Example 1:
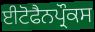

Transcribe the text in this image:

ਈਟੋਫੈਨਪ੍ਰੌਕਸ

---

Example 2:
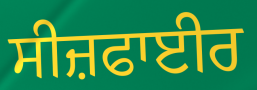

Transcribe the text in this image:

ਸੀਜ਼ਫਾਈਰ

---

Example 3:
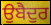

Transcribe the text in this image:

ਉਬੈਦੁਰ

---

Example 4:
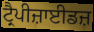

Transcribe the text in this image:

ਟ੍ਰੈਪੀਜ਼ਾਈਡਜ਼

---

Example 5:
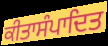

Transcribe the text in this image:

ਕੀਤਾਸੰਪਾਦਿਤ